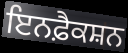
ਇਨਫ਼ੈਕਸ਼ਨ